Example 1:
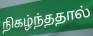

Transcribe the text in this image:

நிகழ்ந்ததால்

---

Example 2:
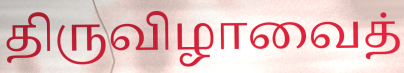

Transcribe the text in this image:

திருவிழாவைத்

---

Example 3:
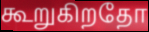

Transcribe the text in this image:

கூறுகிறதோ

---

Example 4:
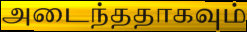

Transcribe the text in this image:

அடைந்ததாகவும்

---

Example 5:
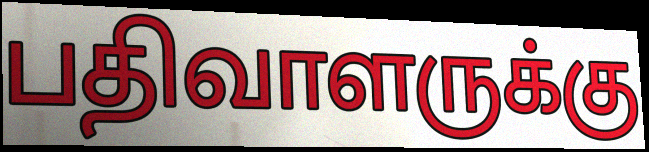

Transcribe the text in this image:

பதிவாளருக்கு